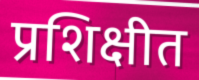
प्रशिक्षीत